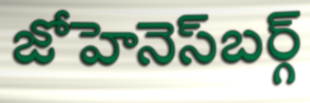
జోహెనెస్‍బర్గ్